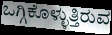
ಒಗ್ಗಿಕೊಳ್ಳುತ್ತಿರುವ